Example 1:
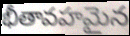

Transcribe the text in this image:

భీతావహమైన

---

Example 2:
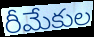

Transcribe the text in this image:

రీమేకుల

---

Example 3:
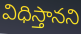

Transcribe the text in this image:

విధిస్తానని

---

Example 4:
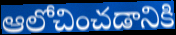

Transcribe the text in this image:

ఆలోచించడానికి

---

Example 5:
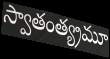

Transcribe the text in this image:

స్వాతంత్య్రమూ